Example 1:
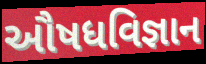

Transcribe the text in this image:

ઔષધવિજ્ઞાન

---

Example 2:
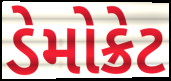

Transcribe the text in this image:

ડેમોક્રેટ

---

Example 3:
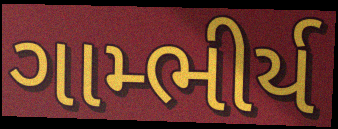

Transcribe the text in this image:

ગામ્ભીર્ય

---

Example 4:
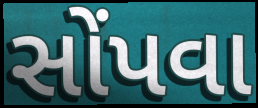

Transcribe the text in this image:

સોંપવા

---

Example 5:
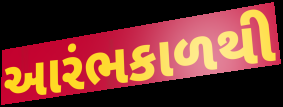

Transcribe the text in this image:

આરંભકાળથી